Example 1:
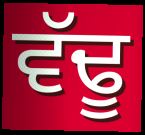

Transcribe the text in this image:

ਵੱਢੂ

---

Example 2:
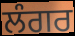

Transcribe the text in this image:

ਲੰਗਰ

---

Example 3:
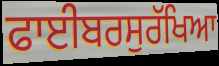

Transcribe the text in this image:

ਫਾਈਬਰਸੁਰੱਖਿਆ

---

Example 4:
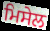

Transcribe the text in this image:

ਮਿਸੇਲ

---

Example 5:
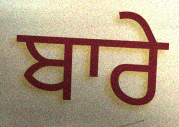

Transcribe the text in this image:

ਬਾਰੇ